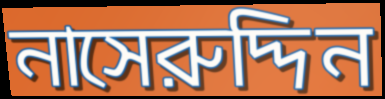
নাসেরুদ্দিন